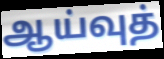
ஆய்வுத்